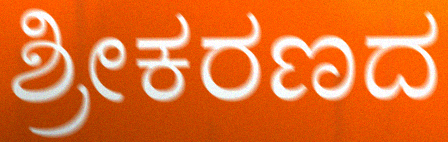
ಶ್ರೀಕರಣದ